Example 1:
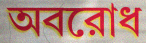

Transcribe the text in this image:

অবরোধ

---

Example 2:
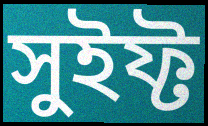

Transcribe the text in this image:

সুইফ্ট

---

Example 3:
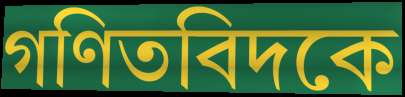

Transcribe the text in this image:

গণিতবিদকে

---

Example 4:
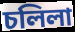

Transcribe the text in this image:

চলিলা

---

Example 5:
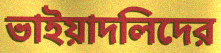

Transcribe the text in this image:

ভাইয়াদলিদের